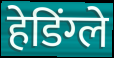
हेडिंग्‍ले